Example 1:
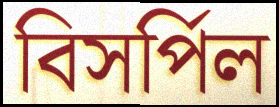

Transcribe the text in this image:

বিসর্পিল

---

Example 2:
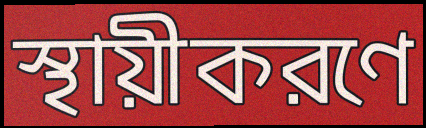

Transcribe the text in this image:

স্থায়ীকরণে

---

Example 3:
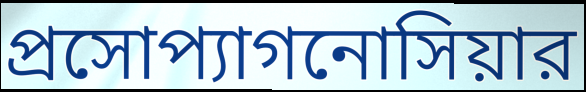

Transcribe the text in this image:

প্রসোপ্যাগনোসিয়ার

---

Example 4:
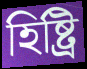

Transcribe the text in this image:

হিষ্ট্রি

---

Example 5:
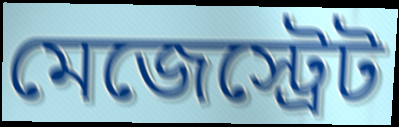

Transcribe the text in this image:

মেজেস্ট্রেট